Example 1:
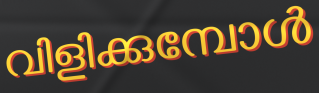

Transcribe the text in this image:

വിളിക്കുമ്പോൾ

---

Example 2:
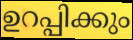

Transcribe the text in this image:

ഉറപ്പിക്കും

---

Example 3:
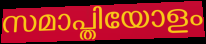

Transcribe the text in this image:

സമാപ്തിയോളം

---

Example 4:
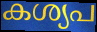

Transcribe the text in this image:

കശ്യപ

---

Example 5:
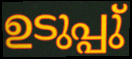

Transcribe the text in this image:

ഉടുപ്പു്